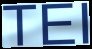
TEI